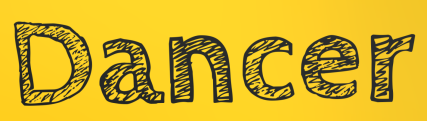
Dancer